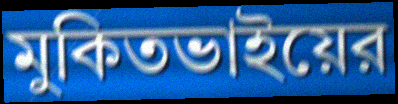
মুকিতভাইয়ের